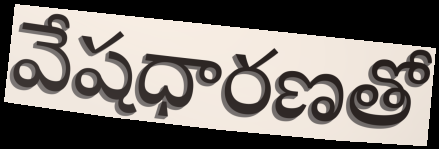
వేషధారణతో